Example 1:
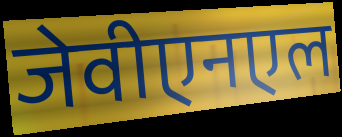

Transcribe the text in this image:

जेवीएनएल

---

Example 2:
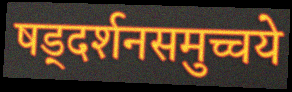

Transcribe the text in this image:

षड्दर्शनसमुच्चये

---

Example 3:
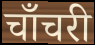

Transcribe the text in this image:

चाँचरी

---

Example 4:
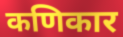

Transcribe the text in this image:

कणिकार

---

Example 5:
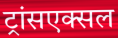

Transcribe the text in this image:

ट्रांसएक्सल